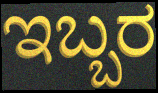
ಇಬ್ಬರ